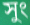
সুং